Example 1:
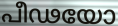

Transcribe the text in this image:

പീഢയോ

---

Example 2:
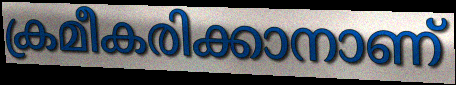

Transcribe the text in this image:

ക്രമീകരിക്കാനാണ്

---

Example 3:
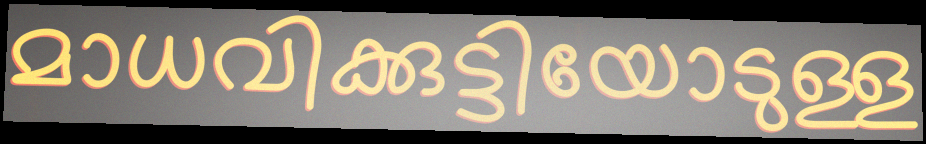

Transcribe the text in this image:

മാധവിക്കുട്ടിയോടുള്ള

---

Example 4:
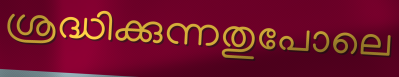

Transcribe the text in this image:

ശ്രദ്ധിക്കുന്നതുപോലെ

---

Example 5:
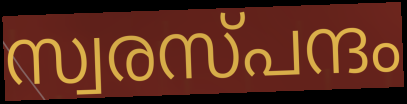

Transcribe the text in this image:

സ്വരസ്പന്ദം